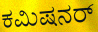
ಕಮಿಷನರ್